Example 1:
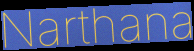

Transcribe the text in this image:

Narthana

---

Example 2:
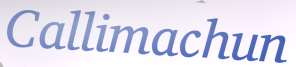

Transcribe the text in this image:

Callimachun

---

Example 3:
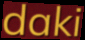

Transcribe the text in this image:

daki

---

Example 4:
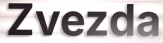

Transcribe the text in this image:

Zvezda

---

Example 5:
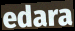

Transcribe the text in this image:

edara